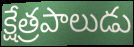
క్షేత్రపాలుడు